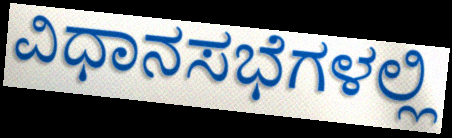
ವಿಧಾನಸಭೆಗಳಲ್ಲಿ